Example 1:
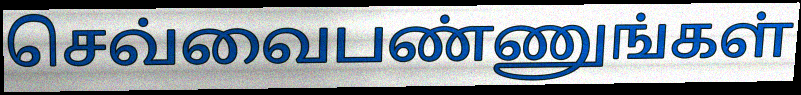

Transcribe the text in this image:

செவ்வைபண்ணுங்கள்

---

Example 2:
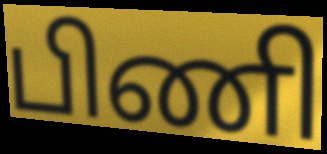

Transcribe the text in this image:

பிணி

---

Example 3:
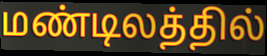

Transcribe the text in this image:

மண்டிலத்தில்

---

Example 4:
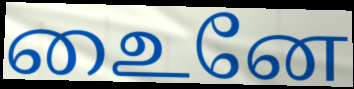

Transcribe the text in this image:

உைனே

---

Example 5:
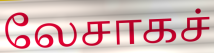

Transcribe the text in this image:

லேசாகச்